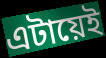
এটায়েই